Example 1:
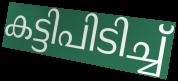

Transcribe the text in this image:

കട്ടിപിടിച്ച്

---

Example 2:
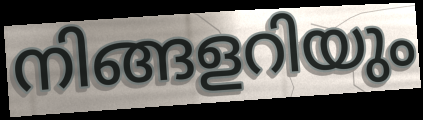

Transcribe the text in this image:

നിങ്ങളറിയും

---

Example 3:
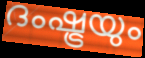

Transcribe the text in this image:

ദംഷ്ട്രയും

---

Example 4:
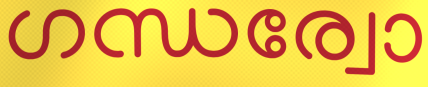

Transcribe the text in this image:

ഗന്ധര്വോ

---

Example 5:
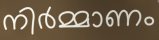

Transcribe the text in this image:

നിർമ്മാണം